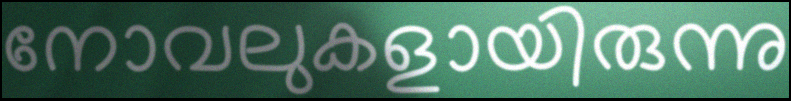
നോവലുകളായിരുന്നു